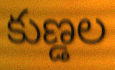
కుణ్డల